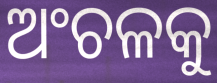
ଅଂଚଳକୁ